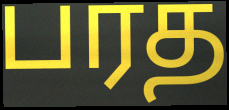
பரத